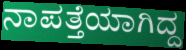
ನಾಪತ್ತೆಯಾಗಿದ್ದ